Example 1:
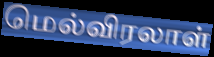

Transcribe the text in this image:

மெல்விரலாள்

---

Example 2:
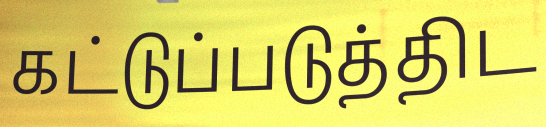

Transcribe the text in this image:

கட்டுப்படுத்திட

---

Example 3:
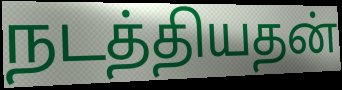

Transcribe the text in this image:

நடத்தியதன்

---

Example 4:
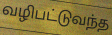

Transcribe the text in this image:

வழிபட்டுவந்த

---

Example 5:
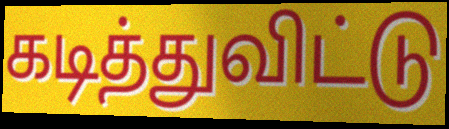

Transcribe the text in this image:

கடித்துவிட்டு